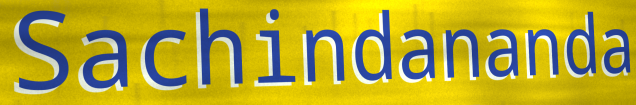
Sachindananda